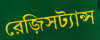
রেজ়িসট্যান্স